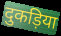
दुकड़िया